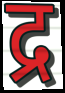
द्र